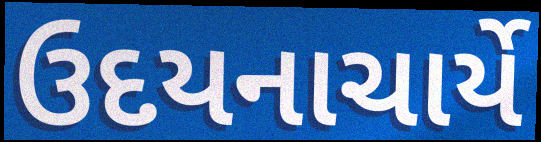
ઉદયનાચાર્યે